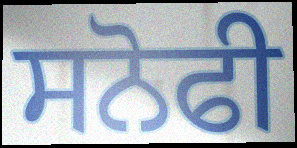
ਸਨੋਫੀ